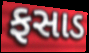
ફસાડ